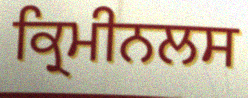
ਕ੍ਰਿਮੀਨਲਸ